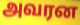
அவரன